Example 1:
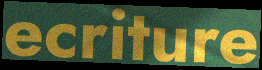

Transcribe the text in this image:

ecriture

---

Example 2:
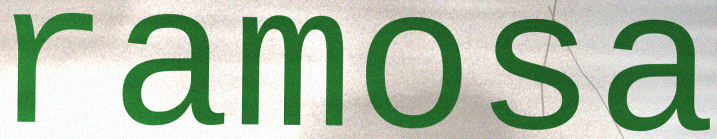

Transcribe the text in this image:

ramosa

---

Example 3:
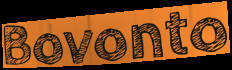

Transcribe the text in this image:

Bovonto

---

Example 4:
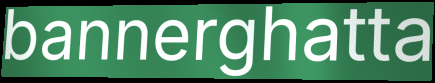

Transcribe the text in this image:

bannerghatta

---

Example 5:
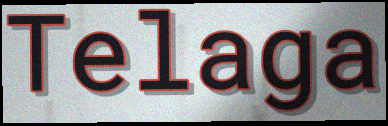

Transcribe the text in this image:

Telaga